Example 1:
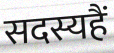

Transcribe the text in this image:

सदस्यहैं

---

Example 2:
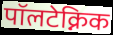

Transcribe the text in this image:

पॉलटेक्निक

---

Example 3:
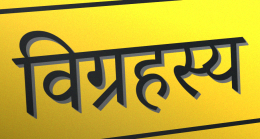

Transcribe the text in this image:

विग्रहस्य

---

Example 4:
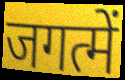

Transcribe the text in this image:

जगत्में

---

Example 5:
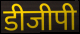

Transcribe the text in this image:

डीजीपी